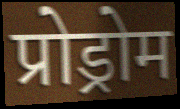
प्रोड्रोम